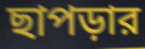
ছাপড়ার